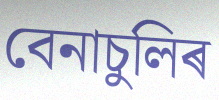
বেনাচুলিৰ